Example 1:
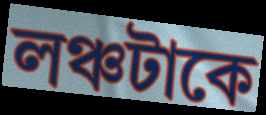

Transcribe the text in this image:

লঞ্চটাকে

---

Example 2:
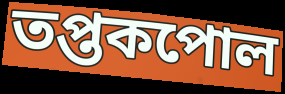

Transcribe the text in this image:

তপ্তকপোল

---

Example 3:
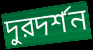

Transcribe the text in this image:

দুরদর্শন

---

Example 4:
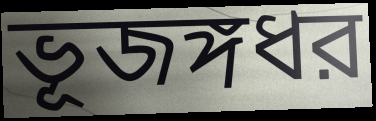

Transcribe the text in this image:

ভূজঙ্গধর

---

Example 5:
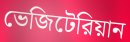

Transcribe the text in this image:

ভেজিটেরিয়ান